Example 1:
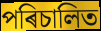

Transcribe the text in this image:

পৰিচালিত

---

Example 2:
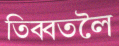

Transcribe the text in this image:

তিব্বতলৈ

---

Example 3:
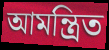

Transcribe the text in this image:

আমন্ত্ৰিত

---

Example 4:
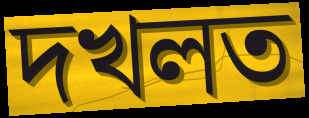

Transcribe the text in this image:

দখলত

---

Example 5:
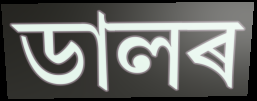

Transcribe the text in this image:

ডালৰ